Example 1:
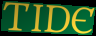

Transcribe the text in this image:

TIDE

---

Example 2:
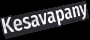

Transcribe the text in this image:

Kesavapany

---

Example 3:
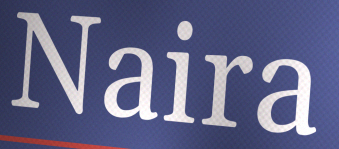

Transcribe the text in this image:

Naira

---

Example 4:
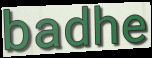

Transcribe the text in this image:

badhe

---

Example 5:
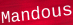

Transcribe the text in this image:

Mandous